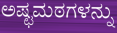
ಅಷ್ಟಮಠಗಳನ್ನು